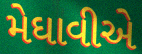
મેઘાવીએ